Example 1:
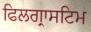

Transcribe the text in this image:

ਫਿਲਗ੍ਰਾਸਟਿਮ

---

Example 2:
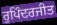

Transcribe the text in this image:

ਰੁਪਿੰਦਰਜੀਤ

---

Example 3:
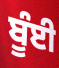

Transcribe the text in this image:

ਬੂੰਈ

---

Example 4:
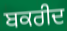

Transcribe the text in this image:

ਬਕਰੀਦ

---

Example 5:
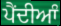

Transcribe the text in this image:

ਪੈੰਦੀਆੰ